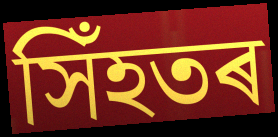
সিঁহতৰ